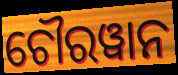
ଚୌରୱାନ